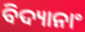
ବିଦ୍ୟାନାଂ